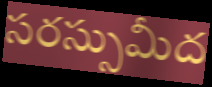
సరస్సుమీద